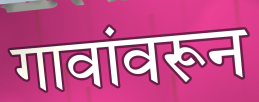
गावांवरून